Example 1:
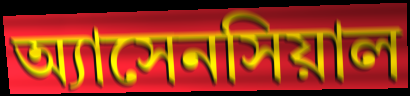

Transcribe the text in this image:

অ্যাসেনসিয়াল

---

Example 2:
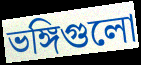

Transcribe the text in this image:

ভঙ্গিগুলো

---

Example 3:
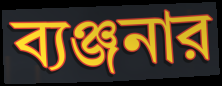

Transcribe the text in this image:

ব্যঞ্জনার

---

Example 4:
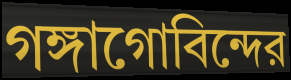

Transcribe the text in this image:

গঙ্গাগোবিন্দের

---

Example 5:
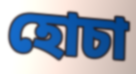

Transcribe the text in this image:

হোচা